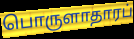
பொருளாதாரப்